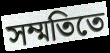
সম্মতিতে